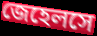
জেহেলসে